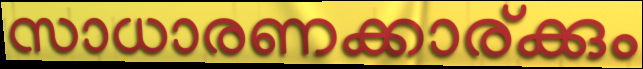
സാധാരണക്കാര്ക്കും